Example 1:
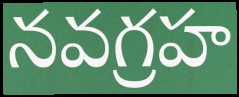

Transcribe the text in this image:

నవగ్రహ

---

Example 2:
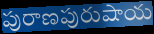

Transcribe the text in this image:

పురాణపురుషాయ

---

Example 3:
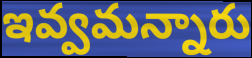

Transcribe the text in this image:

ఇవ్వమన్నారు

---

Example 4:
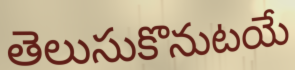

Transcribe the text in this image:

తెలుసుకొనుటయే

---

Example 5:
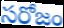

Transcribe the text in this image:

సరోజం